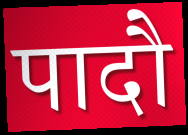
पादौ